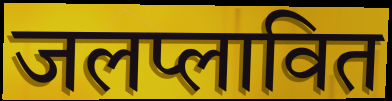
जलप्लावित